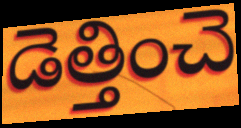
డెత్తించె